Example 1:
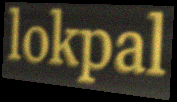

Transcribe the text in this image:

lokpal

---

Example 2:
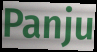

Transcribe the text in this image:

Panju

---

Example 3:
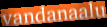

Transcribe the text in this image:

vandanaalu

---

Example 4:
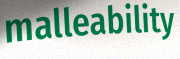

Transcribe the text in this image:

malleability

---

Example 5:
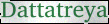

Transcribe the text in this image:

Dattatreya